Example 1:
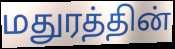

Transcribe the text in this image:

மதுரத்தின்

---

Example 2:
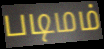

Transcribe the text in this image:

படிமம்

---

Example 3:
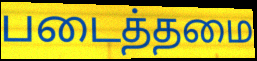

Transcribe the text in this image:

படைத்தமை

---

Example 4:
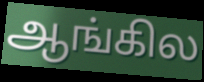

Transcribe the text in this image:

ஆங்கில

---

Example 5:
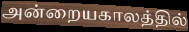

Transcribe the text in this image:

அன்றையகாலத்தில்